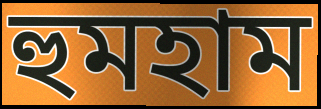
হুমহাম